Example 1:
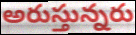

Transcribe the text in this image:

అరుస్తున్నరు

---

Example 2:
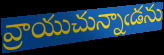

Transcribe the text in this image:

వ్రాయుచున్నాఁడను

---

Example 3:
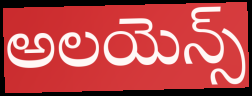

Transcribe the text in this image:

అలయెన్స్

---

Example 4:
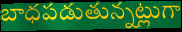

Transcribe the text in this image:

బాధపడుతున్నట్లుగా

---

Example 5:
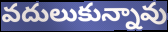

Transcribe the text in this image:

వదులుకున్నావు